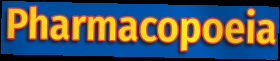
Pharmacopoeia